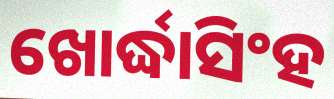
ଖୋର୍ଦ୍ଧାସିଂହ